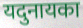
यदुनायका